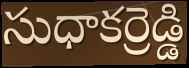
సుధాకర్రెడ్డి